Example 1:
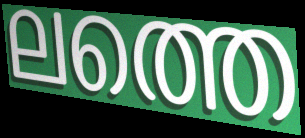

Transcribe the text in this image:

ലത്തെ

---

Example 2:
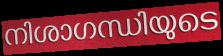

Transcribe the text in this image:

നിശാഗന്ധിയുടെ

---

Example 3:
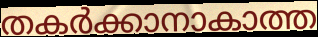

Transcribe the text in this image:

തകർക്കാനാകാത്ത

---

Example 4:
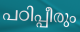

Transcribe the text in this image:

പഠിപ്പീരും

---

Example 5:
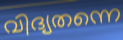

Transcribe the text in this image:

വിദ്യതന്നെ